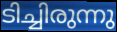
ടിച്ചിരുന്നു